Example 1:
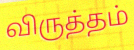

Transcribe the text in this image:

விருத்தம்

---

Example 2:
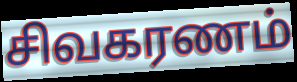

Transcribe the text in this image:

சிவகரணம்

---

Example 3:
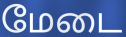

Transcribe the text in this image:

மேடை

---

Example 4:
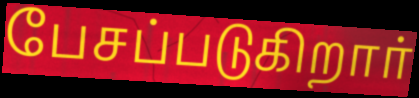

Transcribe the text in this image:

பேசப்படுகிறார்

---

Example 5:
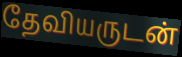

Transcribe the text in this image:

தேவியருடன்